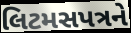
લિટમસપત્રને